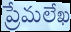
ప్రేమలేఖ